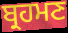
ਬ੍ਰਹਮਣ